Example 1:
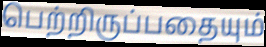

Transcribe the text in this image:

பெற்றிருப்பதையும்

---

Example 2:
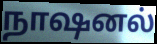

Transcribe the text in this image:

நாஷனல்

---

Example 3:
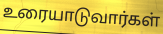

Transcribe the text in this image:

உரையாடுவார்கள்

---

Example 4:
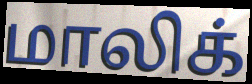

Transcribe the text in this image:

மாலிக்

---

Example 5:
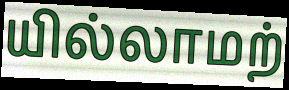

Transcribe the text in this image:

யில்லாமற்